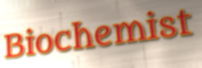
Biochemist